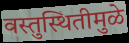
वस्तुस्थितीमुळे